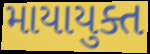
માયાયુક્ત